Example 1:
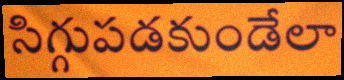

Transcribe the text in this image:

సిగ్గుపడకుండేలా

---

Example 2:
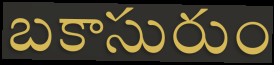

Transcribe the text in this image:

బకాసురుం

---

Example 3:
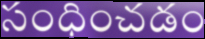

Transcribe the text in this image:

సంధించడం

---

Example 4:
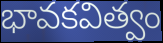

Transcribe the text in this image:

భావకవిత్వం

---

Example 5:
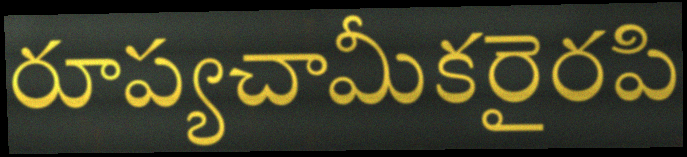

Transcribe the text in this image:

రూప్యచామీకరైరపి